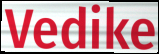
Vedike